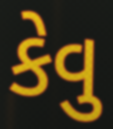
કેવુ